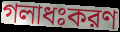
গলাধঃকরণ